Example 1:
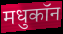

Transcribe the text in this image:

मधुकॉन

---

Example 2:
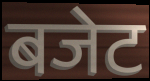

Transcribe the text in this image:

बजेट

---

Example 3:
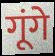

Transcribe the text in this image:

गूंगे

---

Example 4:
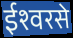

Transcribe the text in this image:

ईश्वरसे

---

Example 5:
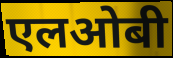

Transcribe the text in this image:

एलओबी